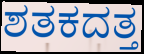
ಶತಕದತ್ತ